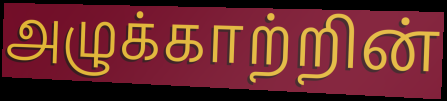
அழுக்காற்றின்